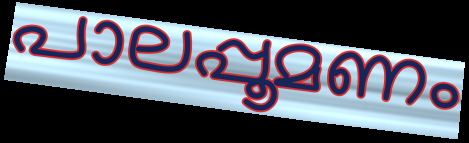
പാലപ്പൂമണം